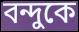
বন্দুকে